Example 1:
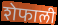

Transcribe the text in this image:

शेफाली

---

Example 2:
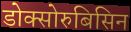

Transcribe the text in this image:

डोक्सोरुबिसिन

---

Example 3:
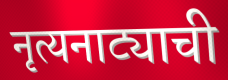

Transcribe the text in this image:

नृत्यनाट्याची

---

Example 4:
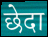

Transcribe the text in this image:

छेदा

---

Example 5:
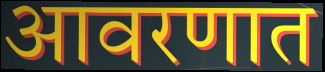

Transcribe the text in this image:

आवरणात